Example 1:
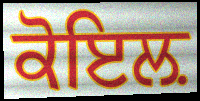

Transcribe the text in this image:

ਕੋਇਲ਼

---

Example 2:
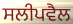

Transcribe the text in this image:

ਸਲੀਪਵੈਲ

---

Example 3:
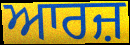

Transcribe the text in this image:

ਆਰਜ਼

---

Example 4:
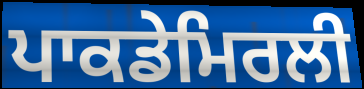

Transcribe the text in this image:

ਪਾਕਡੇਮਿਰਲੀ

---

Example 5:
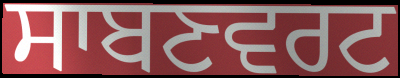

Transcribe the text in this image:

ਸਾਬਣਵਰਟ